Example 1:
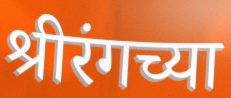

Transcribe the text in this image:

श्रीरंगच्या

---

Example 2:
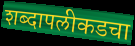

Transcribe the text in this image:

शब्दापलीकडचा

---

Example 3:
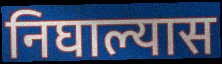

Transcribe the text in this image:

निघाल्यास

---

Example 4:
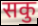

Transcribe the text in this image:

सकु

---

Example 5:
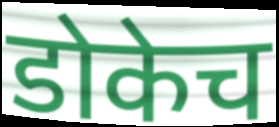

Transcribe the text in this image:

डोकेच